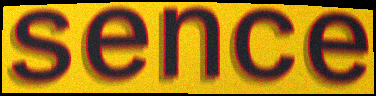
sence